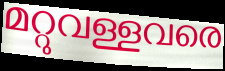
മറ്റുവള്ളവരെ